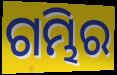
ଗମ୍ଭିର